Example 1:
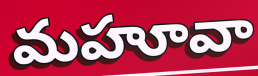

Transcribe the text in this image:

మహూవా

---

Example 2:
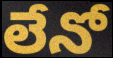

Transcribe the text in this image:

లేనో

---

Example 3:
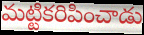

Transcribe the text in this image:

మట్టికరిపించాడు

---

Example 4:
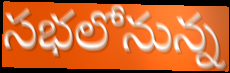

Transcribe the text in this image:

సభలోనున్న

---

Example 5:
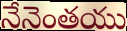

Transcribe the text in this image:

నేనెంతయు